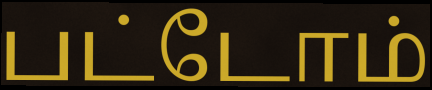
பட்டோம்